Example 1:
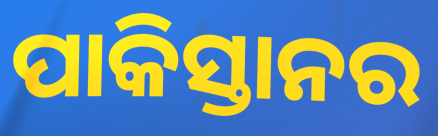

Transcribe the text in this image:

ପାକିସ୍ତାନର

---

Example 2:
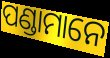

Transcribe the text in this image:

ପଣ୍ଡାମାନେ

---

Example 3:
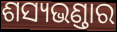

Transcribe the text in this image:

ଶସ୍ୟଭଣ୍ଡାର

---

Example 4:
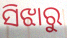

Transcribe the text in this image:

ସିଝାରୁ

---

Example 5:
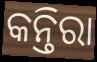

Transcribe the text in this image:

କନ୍ତିରା